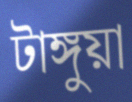
টাঙ্গুয়া